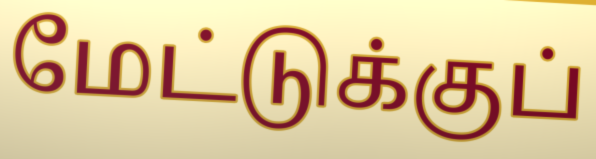
மேட்டுக்குப்